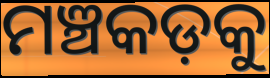
ମଞ୍ଚକଡ଼କୁ